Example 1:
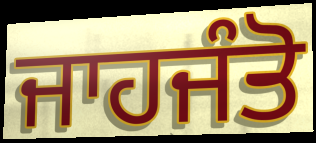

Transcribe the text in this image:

ਜਾਹਜੰਤੋ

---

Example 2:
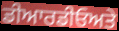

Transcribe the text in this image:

ਡੀਆਰਡੀਓਅਤੇ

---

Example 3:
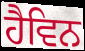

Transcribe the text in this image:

ਹੈਵਿਨ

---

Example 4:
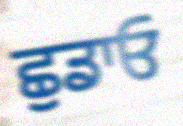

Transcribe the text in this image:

ਛੁਡਾਓ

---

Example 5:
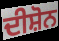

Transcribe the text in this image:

ਦੀਸ਼ੋਨ